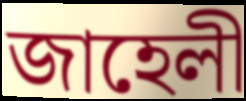
জাহেলী